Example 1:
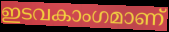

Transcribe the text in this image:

ഇടവകാംഗമാണ്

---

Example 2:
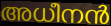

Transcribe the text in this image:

അധീനൻ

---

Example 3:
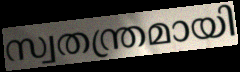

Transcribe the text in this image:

സ്വതന്ത്രമായി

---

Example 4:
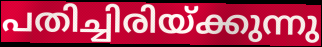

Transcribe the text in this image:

പതിച്ചിരിയ്ക്കുന്നു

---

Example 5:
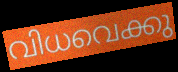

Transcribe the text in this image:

വിധവെക്കു